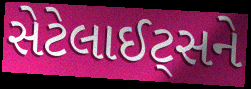
સેટેલાઈટ્સને